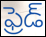
ఫ్రెడ్